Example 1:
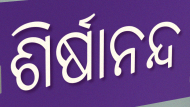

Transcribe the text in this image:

ଶିର୍ଷାନନ୍ଦ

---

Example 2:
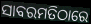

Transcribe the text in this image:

ସାବରମତିଠାରେ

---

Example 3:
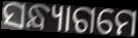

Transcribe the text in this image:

ସନ୍ଧ୍ୟାଗମେ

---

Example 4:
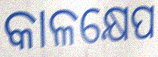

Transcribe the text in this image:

କାଳକ୍ଷେପ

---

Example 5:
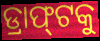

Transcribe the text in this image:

ଡ୍ରାଫ୍‌ଟକୁ